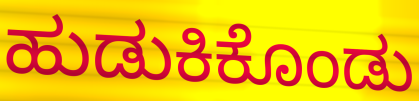
ಹುಡುಕಿಕೊಂಡು